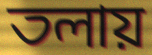
তলায়